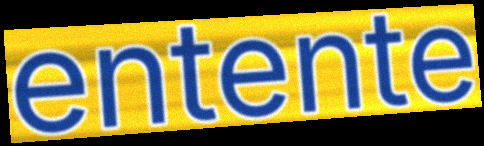
entente